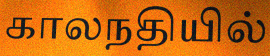
காலநதியில்